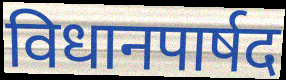
विधानपार्षद